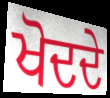
ਖੋਦਦੇ